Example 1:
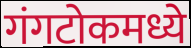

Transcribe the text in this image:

गंगटोकमध्ये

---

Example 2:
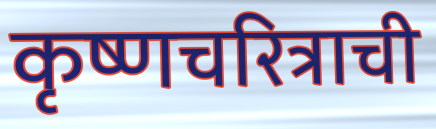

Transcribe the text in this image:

कृष्णचरित्राची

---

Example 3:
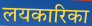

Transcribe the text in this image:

लयकारिका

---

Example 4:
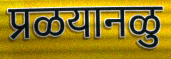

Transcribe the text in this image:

प्रळयानळु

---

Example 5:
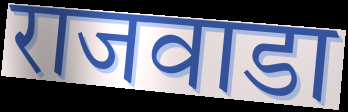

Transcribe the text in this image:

राजवाडा